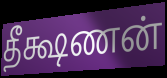
தீக்ஷணன்